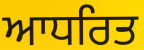
ਆਧਰਿਤ